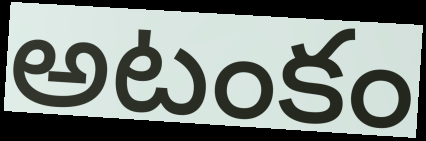
అటంకం